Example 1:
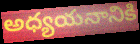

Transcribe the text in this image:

అధ్యయనానికి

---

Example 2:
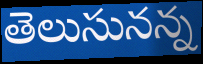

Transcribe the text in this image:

తెలుసునన్న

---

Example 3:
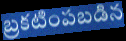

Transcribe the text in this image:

బ్రకటింపబడిన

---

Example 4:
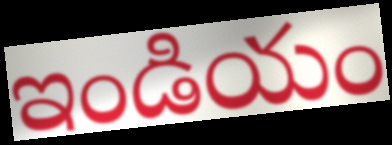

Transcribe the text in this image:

ఇండియం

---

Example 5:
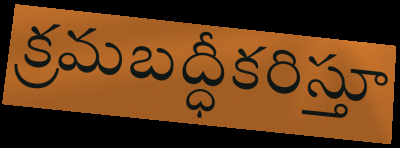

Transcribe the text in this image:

క్రమబద్ధీకరిస్తూ